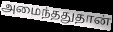
அமைந்ததுதான்